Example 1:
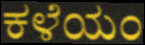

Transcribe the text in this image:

ಕಳೆಯಂ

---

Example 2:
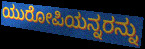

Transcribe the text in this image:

ಯುರೋಪಿಯನ್ನರನ್ನು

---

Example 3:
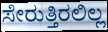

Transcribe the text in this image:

ಸೇರುತ್ತಿರಲಿಲ್ಲ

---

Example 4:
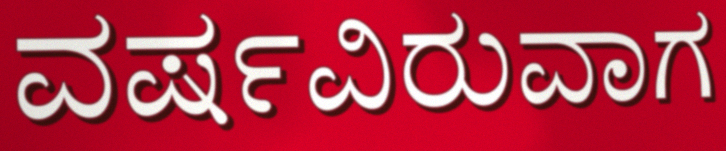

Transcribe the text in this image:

ವರ್ಷವಿರುವಾಗ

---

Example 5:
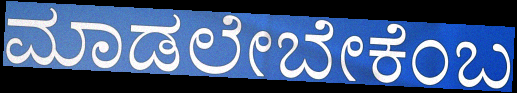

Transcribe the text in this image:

ಮಾಡಲೇಬೇಕೆಂಬ